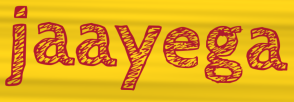
jaayega